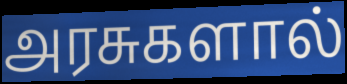
அரசுகளால்